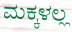
ಮಕ್ಕಳಲ್ಲ